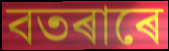
বতৰাৰে